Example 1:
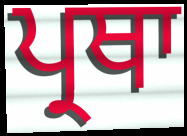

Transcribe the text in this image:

ਪ੍ਰਥਾ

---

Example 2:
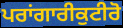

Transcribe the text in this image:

ਪਰਾਂਗਾਰੀਕੁਟੀਰੋ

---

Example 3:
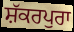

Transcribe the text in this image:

ਸ਼ੱਕਰਪੁਰਾ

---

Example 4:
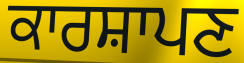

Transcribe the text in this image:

ਕਾਰਸ਼ਾਪਣ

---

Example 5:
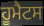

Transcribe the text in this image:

ਹੂਮੈਟਸ